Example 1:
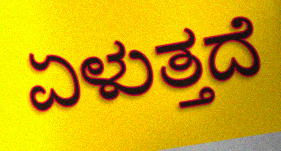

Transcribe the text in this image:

ಏಳುತ್ತದೆ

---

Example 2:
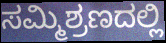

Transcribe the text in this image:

ಸಮ್ಮಿಶ್ರಣದಲ್ಲಿ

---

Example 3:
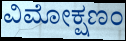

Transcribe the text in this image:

ವಿಮೋಕ್ಷಣಂ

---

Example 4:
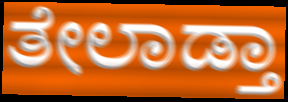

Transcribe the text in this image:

ತೇಲಾಡ್ತಾ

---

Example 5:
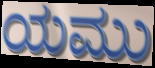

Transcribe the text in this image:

ಯಮು